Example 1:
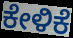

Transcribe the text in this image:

ಕೇಳಿಕೆ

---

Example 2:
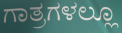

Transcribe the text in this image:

ಗಾತ್ರಗಳಲ್ಲೂ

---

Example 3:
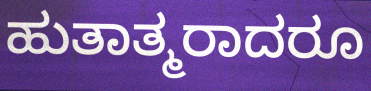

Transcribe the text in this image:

ಹುತಾತ್ಮರಾದರೂ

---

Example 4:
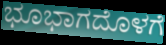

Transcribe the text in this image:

ಭೂಭಾಗದೊಳಗೆ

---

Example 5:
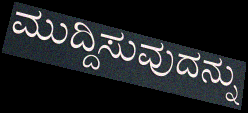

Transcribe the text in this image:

ಮುದ್ದಿಸುವುದನ್ನು